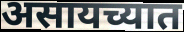
असायच्यात